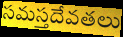
సమస్తదేవతలు